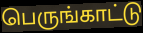
பெருங்காட்டு